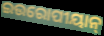
ଇଉରୋପୀୟାନ୍